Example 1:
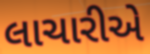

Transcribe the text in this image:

લાચારીએ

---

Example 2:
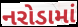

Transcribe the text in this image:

નરોડામાં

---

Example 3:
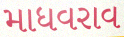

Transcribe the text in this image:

માધવરાવ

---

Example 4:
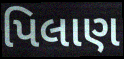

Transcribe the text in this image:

પિલાણ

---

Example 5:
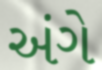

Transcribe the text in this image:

અંગે